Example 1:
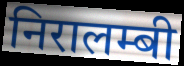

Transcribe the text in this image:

निरालम्बी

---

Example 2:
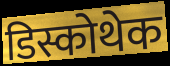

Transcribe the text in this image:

डिस्कोथेक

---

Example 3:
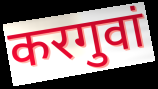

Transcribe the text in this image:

करगुवां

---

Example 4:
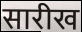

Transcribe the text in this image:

सारीख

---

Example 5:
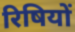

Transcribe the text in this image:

रिषियों